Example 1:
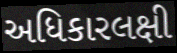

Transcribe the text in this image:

અધિકારલક્ષી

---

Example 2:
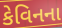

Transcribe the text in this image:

કેવિનના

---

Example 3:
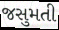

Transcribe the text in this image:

જસુમતી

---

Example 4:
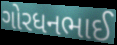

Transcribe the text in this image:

ગોરધનભાઈ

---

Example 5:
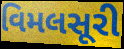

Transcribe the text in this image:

વિમલસૂરી